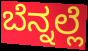
ಬೆನ್ನಲ್ಲೆ